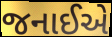
જનાઈએ